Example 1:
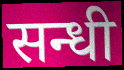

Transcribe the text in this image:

सन्धी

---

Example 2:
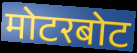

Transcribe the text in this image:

मोटरबोट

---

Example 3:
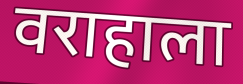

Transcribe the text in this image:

वराहाला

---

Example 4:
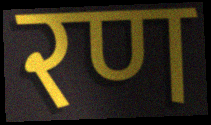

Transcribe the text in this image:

रण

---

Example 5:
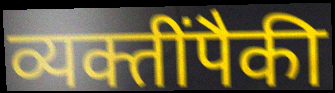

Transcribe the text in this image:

व्यक्‍तींपैकी